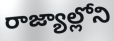
రాజ్యాల్లోని